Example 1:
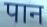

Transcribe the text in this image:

पान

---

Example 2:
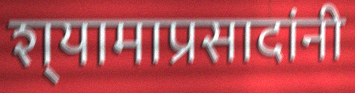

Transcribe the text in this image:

श्यामाप्रसादांनी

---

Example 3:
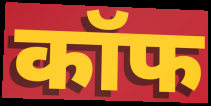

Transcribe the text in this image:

कॉफ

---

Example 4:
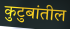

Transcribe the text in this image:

कुटुबांतील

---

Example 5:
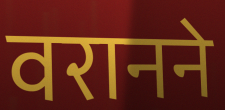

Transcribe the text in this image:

वरानने